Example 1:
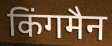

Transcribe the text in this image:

किंगमैन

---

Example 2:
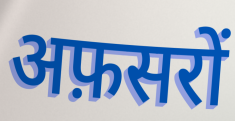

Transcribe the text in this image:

अफ़सरों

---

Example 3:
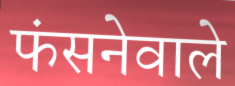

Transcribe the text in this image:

फंसनेवाले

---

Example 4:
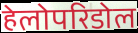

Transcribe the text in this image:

हेलोपरिडोल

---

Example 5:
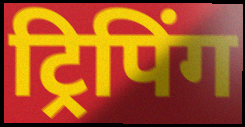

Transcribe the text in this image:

ट्रिपिंग